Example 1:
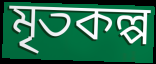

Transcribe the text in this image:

মৃতকল্প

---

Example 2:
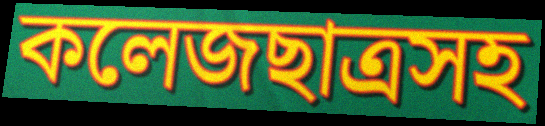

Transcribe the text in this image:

কলেজছাত্রসহ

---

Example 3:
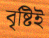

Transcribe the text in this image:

বৃষ্টিই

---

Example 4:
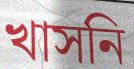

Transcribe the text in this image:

খাসনি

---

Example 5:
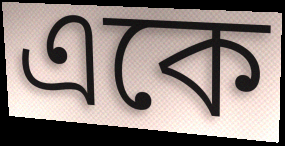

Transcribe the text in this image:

একে